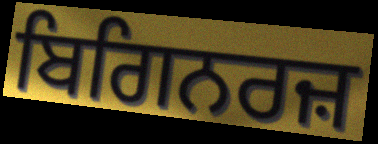
ਬਿਗਿਨਰਜ਼